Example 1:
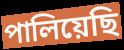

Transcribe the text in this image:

পালিয়েছি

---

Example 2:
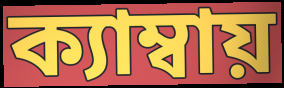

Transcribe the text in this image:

ক্যাম্বায়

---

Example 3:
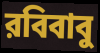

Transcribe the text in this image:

রবিবাবু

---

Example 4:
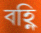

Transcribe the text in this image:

বহ্ণি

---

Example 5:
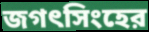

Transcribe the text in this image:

জগৎসিংহের